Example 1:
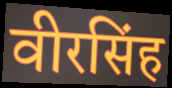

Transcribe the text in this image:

वीरसिंह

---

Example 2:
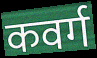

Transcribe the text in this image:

कवर्ग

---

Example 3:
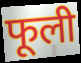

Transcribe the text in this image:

फूली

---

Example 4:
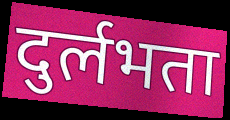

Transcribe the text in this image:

दुर्लभता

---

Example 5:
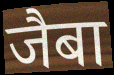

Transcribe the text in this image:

जैबा